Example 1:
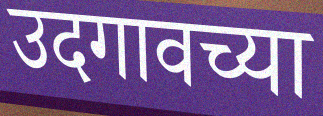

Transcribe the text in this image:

उदगावच्या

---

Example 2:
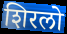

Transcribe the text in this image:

शिरलो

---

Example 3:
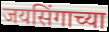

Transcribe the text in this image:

जयसिंगाच्या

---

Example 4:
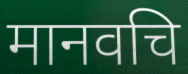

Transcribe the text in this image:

मानवचि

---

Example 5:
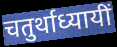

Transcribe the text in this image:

चतुर्थाध्यायीं